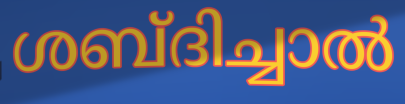
ശബ്ദിച്ചാൽ